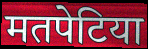
मतपेटिया